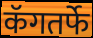
कॅगतर्फे